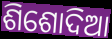
ଶିଶୋଦିଆ